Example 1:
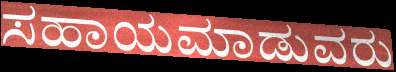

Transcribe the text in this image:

ಸಹಾಯಮಾಡುವರು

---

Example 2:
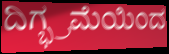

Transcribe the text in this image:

ದಿಗ್ಭ್ರಮೆಯಿಂದ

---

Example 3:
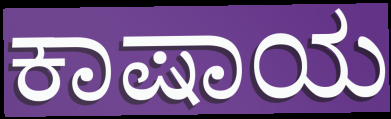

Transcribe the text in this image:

ಕಾಷಾಯ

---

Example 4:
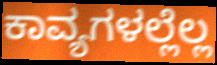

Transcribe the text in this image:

ಕಾವ್ಯಗಳಲ್ಲೆಲ್ಲ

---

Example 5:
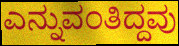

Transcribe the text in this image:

ಎನ್ನುವಂತಿದ್ದವು